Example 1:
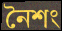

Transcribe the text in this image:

নৈশং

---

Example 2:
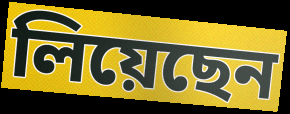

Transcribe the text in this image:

লিয়েছেন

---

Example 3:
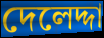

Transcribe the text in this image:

দেলেদ্দা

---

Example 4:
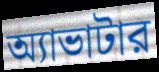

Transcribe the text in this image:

অ্যাভাটার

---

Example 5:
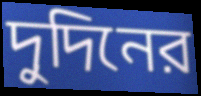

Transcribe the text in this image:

দুদিনের